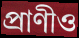
প্রাণীও